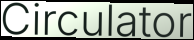
Circulator